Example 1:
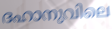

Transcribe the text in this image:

ദഹാനുവിലെ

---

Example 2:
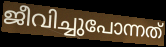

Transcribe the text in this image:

ജീവിച്ചുപോന്നത്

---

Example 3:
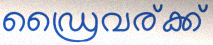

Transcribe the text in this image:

ഡ്രൈവര്ക്ക്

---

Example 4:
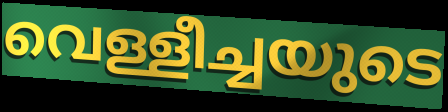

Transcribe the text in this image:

വെള്ളീച്ചയുടെ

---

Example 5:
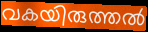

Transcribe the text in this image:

വകയിരുത്തൽ